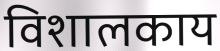
विशालकाय